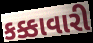
કક્કાવારી